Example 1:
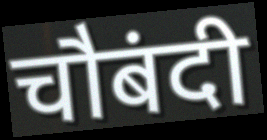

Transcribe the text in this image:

चौबंदी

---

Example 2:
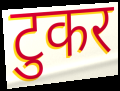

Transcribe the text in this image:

टुकर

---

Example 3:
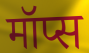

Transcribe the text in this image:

मॉप्स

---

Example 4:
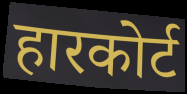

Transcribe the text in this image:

हारकोर्ट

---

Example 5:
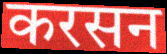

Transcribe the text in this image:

करसन